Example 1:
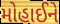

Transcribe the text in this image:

મોહાઈને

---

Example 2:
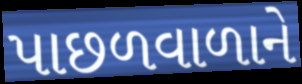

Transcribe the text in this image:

પાછળવાળાને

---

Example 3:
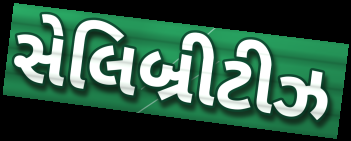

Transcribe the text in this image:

સેલિબ્રીટીઝ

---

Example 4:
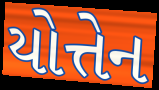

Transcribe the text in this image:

યોત્તેન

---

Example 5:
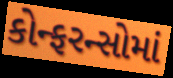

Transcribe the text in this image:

કોન્ફરન્સોમાં